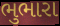
ભુભારા